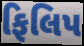
ફિલિપ